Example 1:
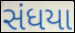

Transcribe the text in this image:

સંધયા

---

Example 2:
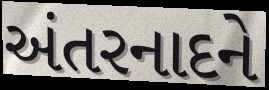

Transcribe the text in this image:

અંતરનાદને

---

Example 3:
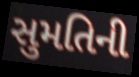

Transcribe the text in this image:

સુમતિની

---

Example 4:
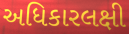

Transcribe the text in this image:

અધિકારલક્ષી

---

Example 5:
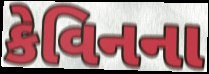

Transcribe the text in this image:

કેવિનના